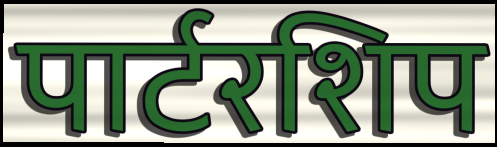
पार्टरशिप